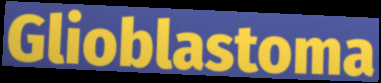
Glioblastoma